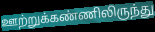
ஊற்றுக்கண்ணிலிருந்து